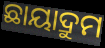
ଛାୟାଦ୍ରୁମ